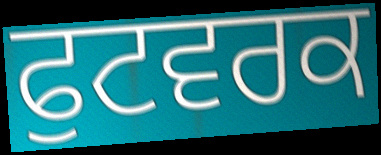
ਫੁਟਵਰਕ